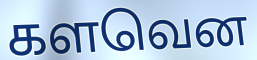
களவென